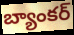
బ్యాంకర్